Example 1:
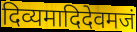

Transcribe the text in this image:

दिव्यमादिदेवमजं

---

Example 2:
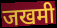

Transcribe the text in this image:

जखमी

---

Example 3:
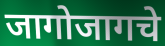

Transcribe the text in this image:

जागोजागचे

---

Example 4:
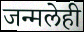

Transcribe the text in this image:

जन्मलेही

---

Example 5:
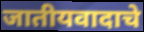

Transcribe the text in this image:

जातीयवादाचे